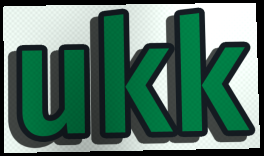
ukk